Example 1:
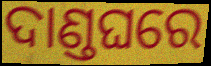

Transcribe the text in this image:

ଦାଣ୍ଡଘରେ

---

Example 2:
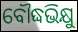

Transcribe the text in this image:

ବୌଦ୍ଧଭିକ୍ଷୁ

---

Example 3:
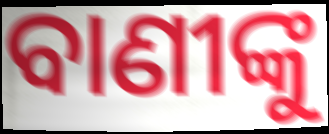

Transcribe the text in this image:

ବାଣୀଙ୍କୁ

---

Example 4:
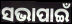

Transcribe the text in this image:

ସଭାପାଇଁ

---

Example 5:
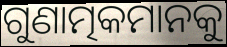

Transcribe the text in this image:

ଗୁଣାତ୍ମକମାନକୁ